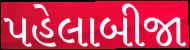
પહેલાબીજા